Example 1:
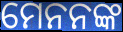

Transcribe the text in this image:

ମେନନଙ୍କ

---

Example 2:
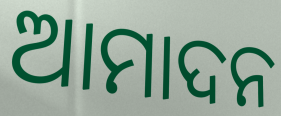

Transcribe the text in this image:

ଆମାଦନ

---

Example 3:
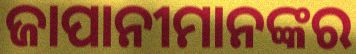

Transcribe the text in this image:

ଜାପାନୀମାନଙ୍କର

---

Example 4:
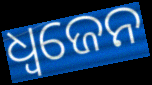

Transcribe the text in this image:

ଧ୍ଵଜେନ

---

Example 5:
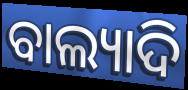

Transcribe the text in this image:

ବାଲ୍ୟାଦି